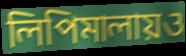
লিপিমালায়ও